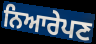
ਨਿਆਰੇਪਣ